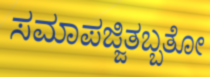
ಸಮಾಪಜ್ಜಿತಬ್ಬತೋ